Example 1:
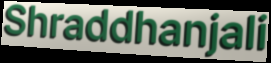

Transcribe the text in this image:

Shraddhanjali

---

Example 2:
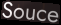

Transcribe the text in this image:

Souce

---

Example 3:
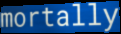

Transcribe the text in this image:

mortally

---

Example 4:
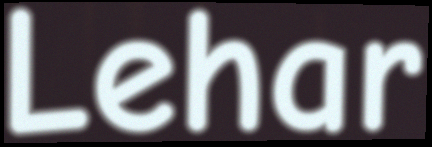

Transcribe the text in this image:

Lehar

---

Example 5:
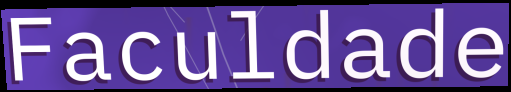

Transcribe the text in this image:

Faculdade